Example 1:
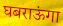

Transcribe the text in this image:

घबराऊंगा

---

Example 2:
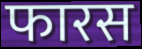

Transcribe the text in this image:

फारस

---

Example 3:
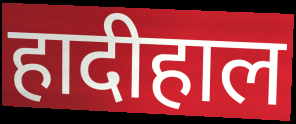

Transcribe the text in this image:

हादीहाल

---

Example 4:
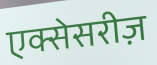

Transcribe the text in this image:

एक्सेसरीज़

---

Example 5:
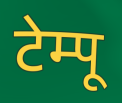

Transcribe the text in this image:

टेम्पू